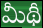
మీథీ